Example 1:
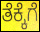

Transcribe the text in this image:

ತೆಕ್ಕೆಗೆ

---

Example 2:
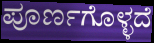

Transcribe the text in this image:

ಪೂರ್ಣಗೊಳ್ಳದೆ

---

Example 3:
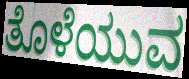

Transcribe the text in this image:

ತೊಳೆಯುವ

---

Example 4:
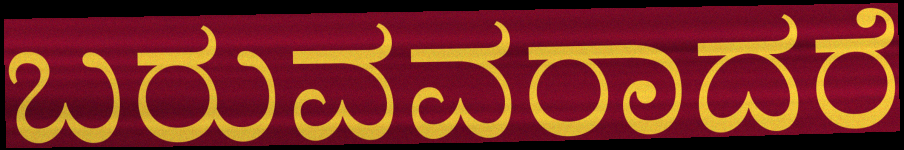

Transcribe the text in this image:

ಬರುವವರಾದರೆ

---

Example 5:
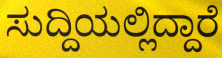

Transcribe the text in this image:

ಸುದ್ದಿಯಲ್ಲಿದ್ದಾರೆ